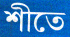
শীতে